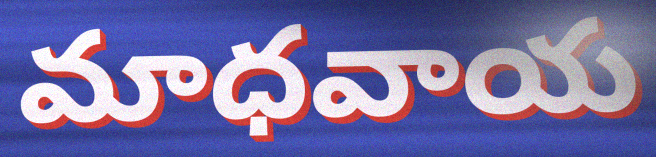
మాధవాయ